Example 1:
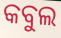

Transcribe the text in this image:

କବୁଲ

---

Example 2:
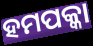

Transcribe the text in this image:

ହମପକ୍କା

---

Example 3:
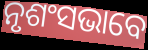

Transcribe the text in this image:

ନୃଶଂସଭାବେ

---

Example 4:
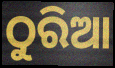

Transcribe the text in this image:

ଠୁରିଆ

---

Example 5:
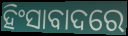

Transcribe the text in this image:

ହିଂସାବାଦରେ